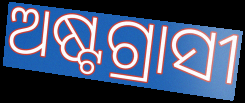
ଅଷ୍ଟଗ୍ରାସୀ